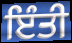
ਇੰਤੀ